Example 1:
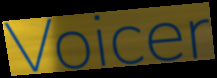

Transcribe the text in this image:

Voicer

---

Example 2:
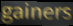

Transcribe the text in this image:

gainers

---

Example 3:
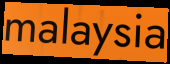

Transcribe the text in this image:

malaysia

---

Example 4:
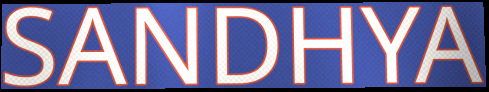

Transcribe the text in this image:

SANDHYA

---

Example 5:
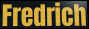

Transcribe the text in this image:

Fredrich